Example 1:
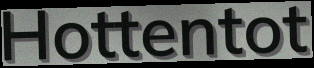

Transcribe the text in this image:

Hottentot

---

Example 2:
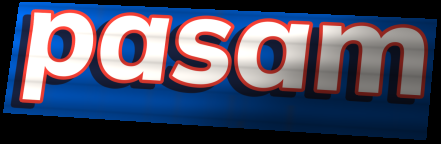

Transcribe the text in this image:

pasam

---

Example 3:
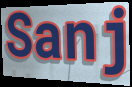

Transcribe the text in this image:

Sanj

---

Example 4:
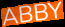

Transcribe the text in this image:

ABBY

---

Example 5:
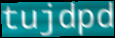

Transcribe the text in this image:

tujdpd